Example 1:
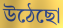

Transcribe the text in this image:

উঠেছো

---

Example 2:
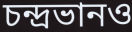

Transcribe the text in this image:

চন্দ্রভানও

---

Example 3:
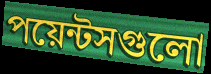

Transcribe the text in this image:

পয়েন্টসগুলো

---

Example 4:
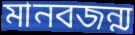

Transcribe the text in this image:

মানবজন্ম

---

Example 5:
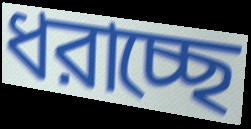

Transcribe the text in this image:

ধরাচ্ছে